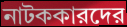
নাটককারদের